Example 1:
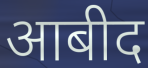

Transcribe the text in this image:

आबीद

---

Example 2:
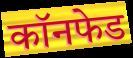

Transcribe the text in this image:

कॉनफेड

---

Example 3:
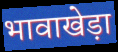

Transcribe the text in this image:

भावाखेड़ा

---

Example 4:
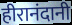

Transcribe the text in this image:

हीरानंदानी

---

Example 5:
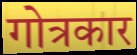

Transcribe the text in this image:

गोत्रकार